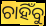
ଚାହିଁବୁ